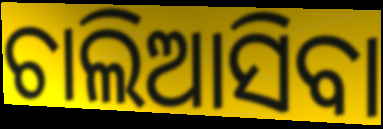
ଚାଲିଆସିବା